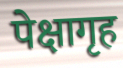
पेक्षागृह